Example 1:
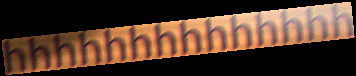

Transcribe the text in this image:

hhhhhhhhhhhhhh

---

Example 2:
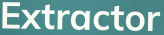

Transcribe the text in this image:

Extractor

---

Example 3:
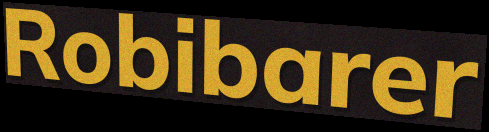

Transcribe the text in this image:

Robibarer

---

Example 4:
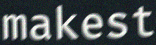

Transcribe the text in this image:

makest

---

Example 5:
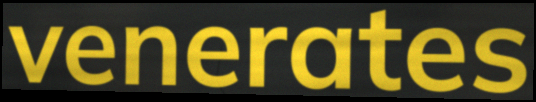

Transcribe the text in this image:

venerates